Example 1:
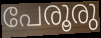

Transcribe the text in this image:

പേരൂരു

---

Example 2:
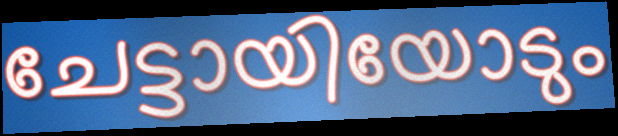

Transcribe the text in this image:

ചേട്ടായിയോടും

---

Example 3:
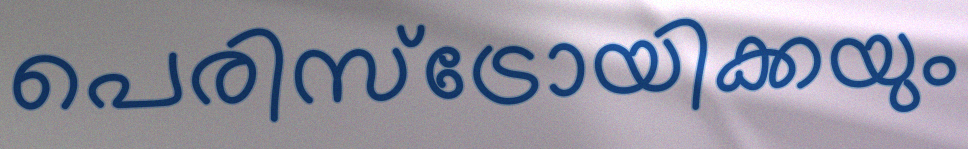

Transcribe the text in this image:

പെരിസ്ട്രോയിക്കയും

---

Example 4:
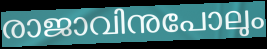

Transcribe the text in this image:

രാജാവിനുപോലും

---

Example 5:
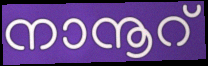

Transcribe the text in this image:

നാനൂറ്